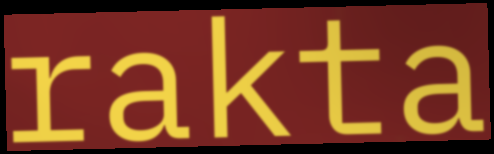
rakta